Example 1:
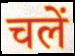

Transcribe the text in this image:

चलें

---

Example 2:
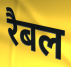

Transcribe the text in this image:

रैबल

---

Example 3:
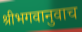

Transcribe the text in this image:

श्रीभगवानुवाच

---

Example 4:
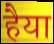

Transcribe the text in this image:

हैया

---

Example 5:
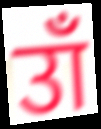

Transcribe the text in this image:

उाँ